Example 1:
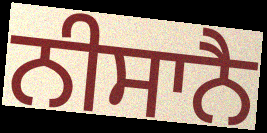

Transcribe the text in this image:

ਨੀਸਾਨੈ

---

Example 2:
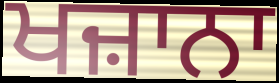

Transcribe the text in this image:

ਖਜ਼ਾਨਾ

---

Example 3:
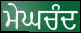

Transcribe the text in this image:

ਮੇਘਚੰਦ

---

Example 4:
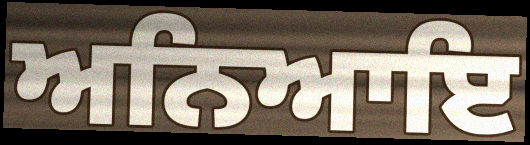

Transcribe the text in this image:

ਅਨਿਆਇ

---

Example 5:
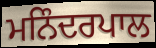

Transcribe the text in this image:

ਮਨਿੰਦਰਪਾਲ